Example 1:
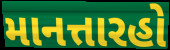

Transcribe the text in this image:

માનત્તારહો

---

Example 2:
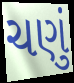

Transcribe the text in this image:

ચણું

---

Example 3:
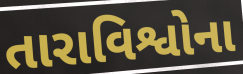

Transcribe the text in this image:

તારાવિશ્વોના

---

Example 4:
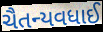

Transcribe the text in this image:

ચૈતન્યવધાઈ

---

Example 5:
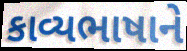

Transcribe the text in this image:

કાવ્યભાષાને